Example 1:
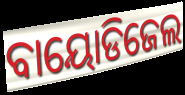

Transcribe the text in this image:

ବାୟୋଡିଜେଲ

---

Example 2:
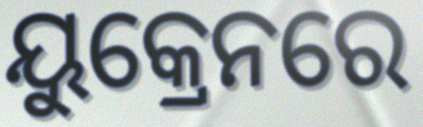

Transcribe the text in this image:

ୟୁକ୍ରେନରେ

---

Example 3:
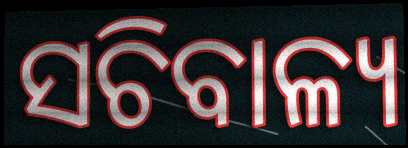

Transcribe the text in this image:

ସଚିବାଳ୍ୟ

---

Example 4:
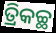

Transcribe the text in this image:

ତ୍ରିକଚ୍ଛ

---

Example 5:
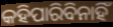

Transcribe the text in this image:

କହିପାରିବିନାହିଁ